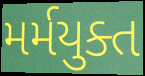
મર્મયુક્ત